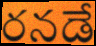
రనడే